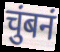
चुंबनं